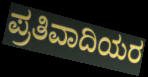
ಪ್ರತಿವಾದಿಯರ